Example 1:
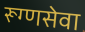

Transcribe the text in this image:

रूग्णसेवा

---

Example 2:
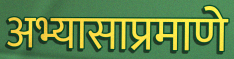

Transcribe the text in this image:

अभ्यासाप्रमाणे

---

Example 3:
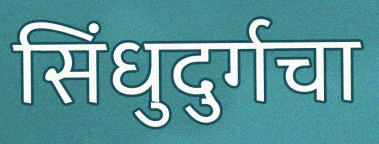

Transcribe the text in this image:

सिंधुदुर्गचा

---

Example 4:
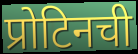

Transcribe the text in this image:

प्रोटिनची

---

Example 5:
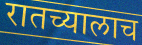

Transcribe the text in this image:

रातच्यालाच